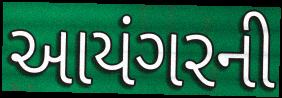
આયંગરની